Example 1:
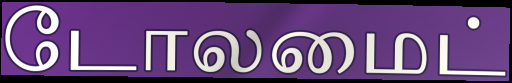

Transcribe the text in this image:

டோலமைட்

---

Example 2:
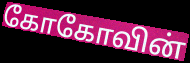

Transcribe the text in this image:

கோகோவின்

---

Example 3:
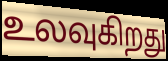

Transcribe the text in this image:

உலவுகிறது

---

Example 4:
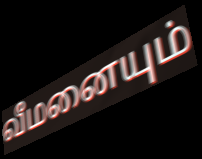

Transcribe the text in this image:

வீமனையும்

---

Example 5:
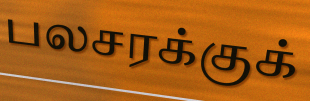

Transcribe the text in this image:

பலசரக்குக்